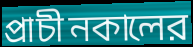
প্রাচীনকালের